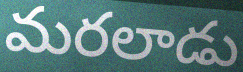
మరలాడు